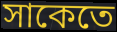
সাকেতে